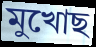
মুখোছ